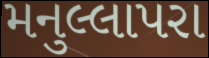
મનુલ્લાપરા